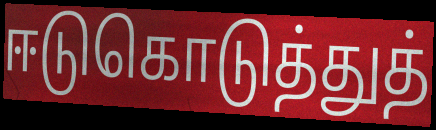
ஈடுகொடுத்துத்